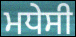
ਮਧੇਸੀ